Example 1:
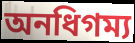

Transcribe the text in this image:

অনধিগম্য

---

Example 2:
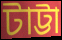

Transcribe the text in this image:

টাট্টা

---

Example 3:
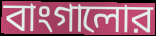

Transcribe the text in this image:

বাংগালোর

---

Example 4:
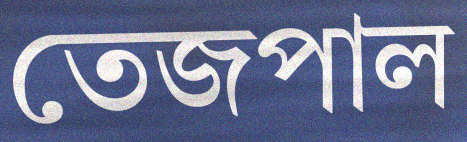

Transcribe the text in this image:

তেজপাল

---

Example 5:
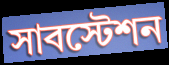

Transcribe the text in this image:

সাবস্টেশন